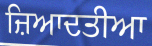
ਜ਼ਿਆਦਤੀਆ